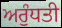
ਅਰੁੰਧਤੀ